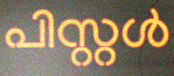
പിസ്റ്റൾ